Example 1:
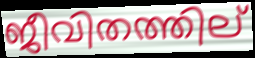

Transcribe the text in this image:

ജീവിതത്തില്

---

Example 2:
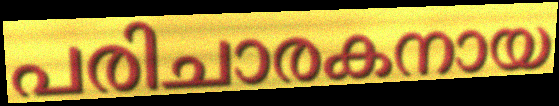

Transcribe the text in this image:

പരിചാരകനായ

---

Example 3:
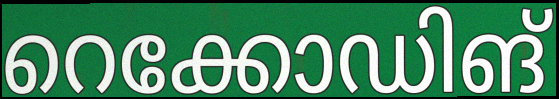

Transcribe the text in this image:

റെക്കോഡിങ്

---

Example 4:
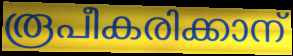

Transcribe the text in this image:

രൂപീകരിക്കാന്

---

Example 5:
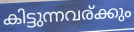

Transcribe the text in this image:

കിട്ടുന്നവര്ക്കും